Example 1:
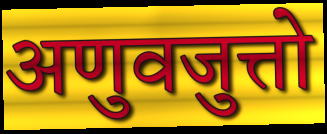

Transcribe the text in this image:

अणुवजुत्तो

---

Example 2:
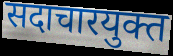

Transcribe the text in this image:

सदाचारयुक्त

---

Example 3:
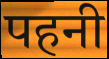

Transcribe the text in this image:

पहनी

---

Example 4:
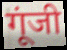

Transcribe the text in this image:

गूंजी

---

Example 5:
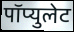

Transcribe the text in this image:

पॉप्युलेट